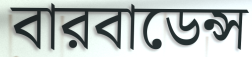
বারবাডেন্স